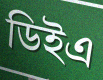
ডিইএ